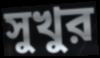
সুখুর